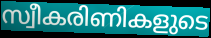
സ്വീകരിണികളുടെ